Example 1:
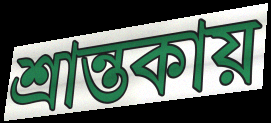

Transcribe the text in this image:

শ্রান্তকায়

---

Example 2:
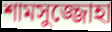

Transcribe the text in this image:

শামসুজ্জোহা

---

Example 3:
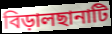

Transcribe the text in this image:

বিড়ালছানাটি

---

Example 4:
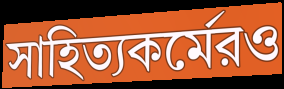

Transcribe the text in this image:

সাহিত্যকর্মেরও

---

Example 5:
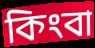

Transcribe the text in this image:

কিংবা